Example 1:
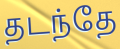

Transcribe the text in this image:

தடந்தே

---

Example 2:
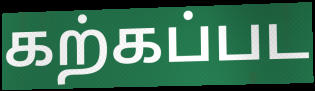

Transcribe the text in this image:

கற்கப்பட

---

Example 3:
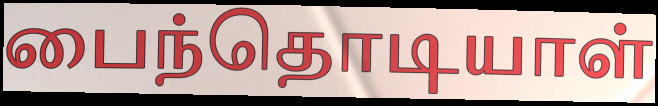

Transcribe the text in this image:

பைந்தொடியாள்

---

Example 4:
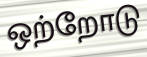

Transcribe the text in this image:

ஒற்றோடு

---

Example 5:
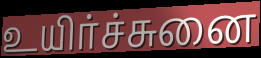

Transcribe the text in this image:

உயிர்ச்சுனை